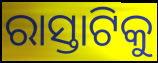
ରାସ୍ତାଟିକୁ